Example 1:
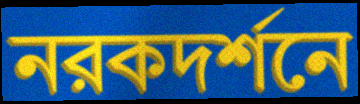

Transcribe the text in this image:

নরকদর্শনে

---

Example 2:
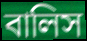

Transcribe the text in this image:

বালিস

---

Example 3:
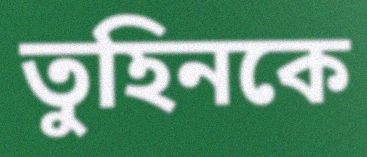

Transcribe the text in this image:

তুহিনকে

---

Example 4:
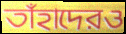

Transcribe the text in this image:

তাঁহাদেরও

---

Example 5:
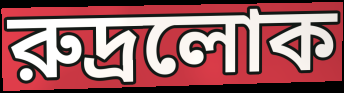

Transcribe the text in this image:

রুদ্রলোক